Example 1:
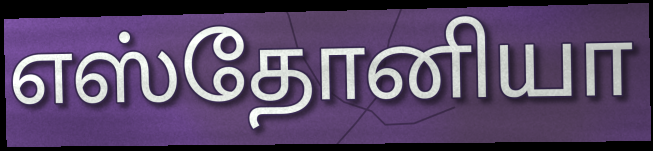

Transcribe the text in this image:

எஸ்தோனியா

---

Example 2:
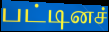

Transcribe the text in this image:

பட்டினச்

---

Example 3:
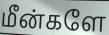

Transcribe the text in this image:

மீன்களே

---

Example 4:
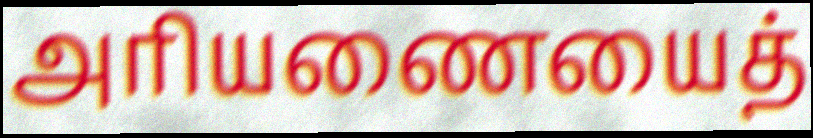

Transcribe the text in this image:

அரியணையைத்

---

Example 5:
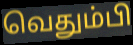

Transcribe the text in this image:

வெதும்பி